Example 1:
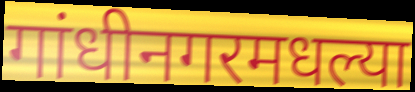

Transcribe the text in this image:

गांधीनगरमधल्या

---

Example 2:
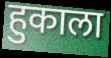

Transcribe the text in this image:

हुकाला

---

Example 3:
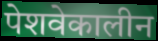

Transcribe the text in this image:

पेशवेकालीन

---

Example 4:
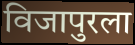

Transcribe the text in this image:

विजापुरला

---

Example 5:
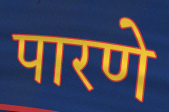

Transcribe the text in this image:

पारणे